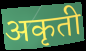
अकृती